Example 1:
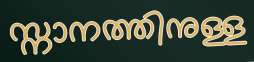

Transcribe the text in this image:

സ്നാനത്തിനുള്ള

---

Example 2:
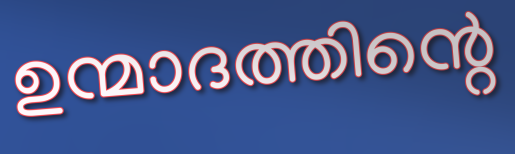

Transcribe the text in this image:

ഉന്മാദത്തിന്റെ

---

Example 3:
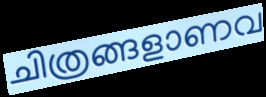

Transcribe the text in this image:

ചിത്രങ്ങളാണവ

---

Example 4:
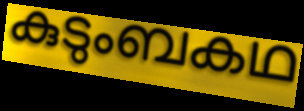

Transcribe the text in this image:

കുടുംബകഥ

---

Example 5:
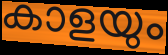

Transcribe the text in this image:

കാളയും